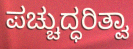
ಪಚ್ಚುದ್ಧರಿತ್ವಾ